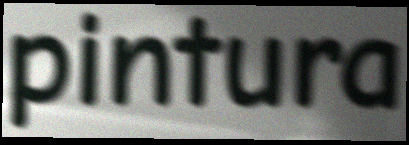
pintura